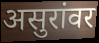
असुरांवर